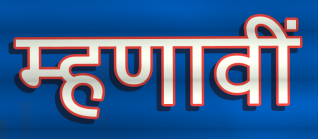
म्हणावीं